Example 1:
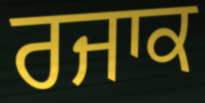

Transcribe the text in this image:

ਰਜਾਕ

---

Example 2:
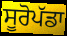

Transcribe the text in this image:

ਸੂਰੋਪੱਡਾ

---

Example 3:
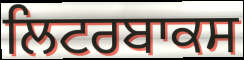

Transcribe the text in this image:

ਲਿਟਰਬਾਕਸ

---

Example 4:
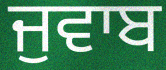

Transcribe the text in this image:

ਜੁਵਾਬ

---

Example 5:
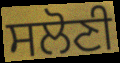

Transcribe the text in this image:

ਸਲੋਣੀ